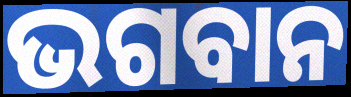
ଭଗବାନ